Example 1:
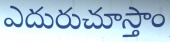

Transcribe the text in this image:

ఎదురుచూస్తాం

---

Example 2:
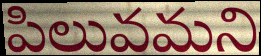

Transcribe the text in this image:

పిలువమని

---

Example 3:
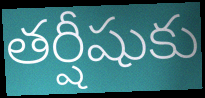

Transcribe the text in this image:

తర్షీషుకు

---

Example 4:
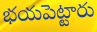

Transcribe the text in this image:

భయపెట్టారు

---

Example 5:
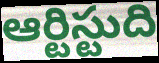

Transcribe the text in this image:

ఆర్టిస్టుది